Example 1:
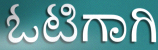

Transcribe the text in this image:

ಓಟಿಗಾಗಿ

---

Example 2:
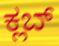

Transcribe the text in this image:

ಕ್ಲಬ್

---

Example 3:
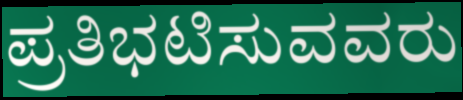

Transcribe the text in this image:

ಪ್ರತಿಭಟಿಸುವವರು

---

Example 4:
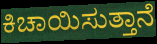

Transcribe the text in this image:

ಕಿಚಾಯಿಸುತ್ತಾನೆ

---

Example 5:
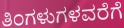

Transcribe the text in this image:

ತಿಂಗಳುಗಳವರೆಗೆ